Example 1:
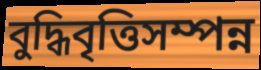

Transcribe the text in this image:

বুদ্ধিবৃত্তিসম্পন্ন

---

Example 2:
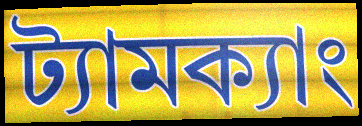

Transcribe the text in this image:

ট্যামক্যাং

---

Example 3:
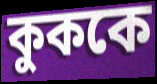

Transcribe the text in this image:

কুককে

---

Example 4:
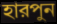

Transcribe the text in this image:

হারপুন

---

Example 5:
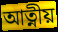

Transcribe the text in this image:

আত্নীয়